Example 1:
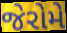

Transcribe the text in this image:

જેરોમે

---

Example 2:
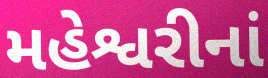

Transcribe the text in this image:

મહેશ્વરીનાં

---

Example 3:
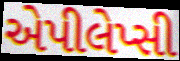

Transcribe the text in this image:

એપીલેપ્સી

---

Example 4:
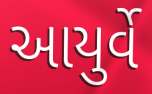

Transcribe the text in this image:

આયુર્વે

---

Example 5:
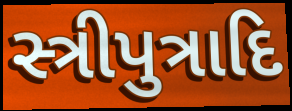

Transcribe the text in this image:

સ્ત્રીપુત્રાદિ